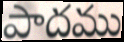
పాదము